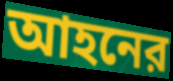
আহনের